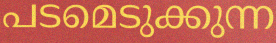
പടമെടുക്കുന്ന